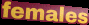
females